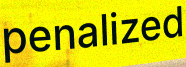
penalized